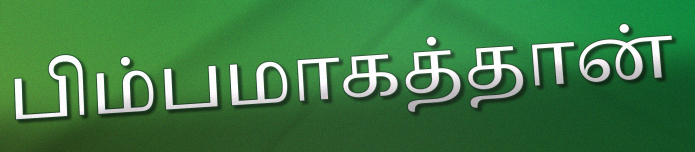
பிம்பமாகத்தான்